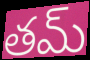
తమ్